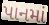
પાનમાં